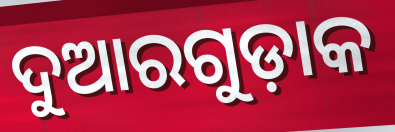
ଦୁଆରଗୁଡ଼ାକ